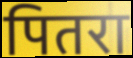
पितरा